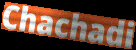
Chachadi